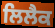
ਲਿਲੈਕ